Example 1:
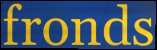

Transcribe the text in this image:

fronds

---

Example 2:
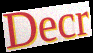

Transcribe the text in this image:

Decr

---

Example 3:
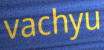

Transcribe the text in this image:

vachyu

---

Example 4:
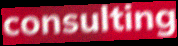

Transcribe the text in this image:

consulting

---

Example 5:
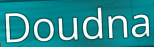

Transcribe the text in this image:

Doudna